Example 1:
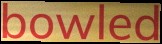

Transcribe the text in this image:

bowled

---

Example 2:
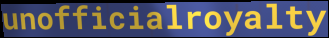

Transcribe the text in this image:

unofficialroyalty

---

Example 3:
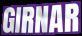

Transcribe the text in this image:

GIRNAR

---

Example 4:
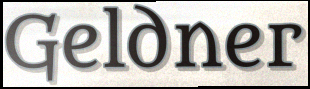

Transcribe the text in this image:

Geldner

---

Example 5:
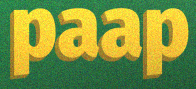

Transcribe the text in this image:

paap